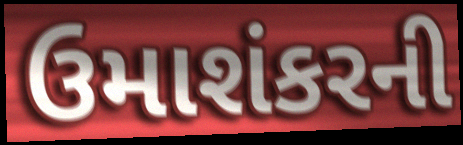
ઉમાશંકરની